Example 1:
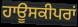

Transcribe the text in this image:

ਹਾਊਸਕੀਪਰਾਂ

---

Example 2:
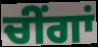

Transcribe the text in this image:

ਚੀਂਗਾਂ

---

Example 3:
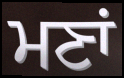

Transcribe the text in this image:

ਮਣਾਂ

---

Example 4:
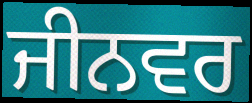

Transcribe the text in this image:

ਜੀਨਵਰ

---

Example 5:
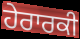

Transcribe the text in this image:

ਹੇਰਾਰਕੀ